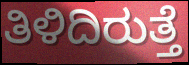
ತಿಳಿದಿರುತ್ತೆ